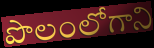
పొలంలోగాని